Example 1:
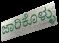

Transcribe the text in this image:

ಜಾರಿಕೊಳ್ಳು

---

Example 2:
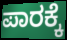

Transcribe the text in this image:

ಪಾರಕ್ಕೆ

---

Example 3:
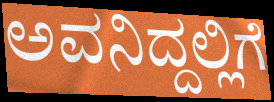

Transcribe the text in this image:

ಅವನಿದ್ದಲ್ಲಿಗೆ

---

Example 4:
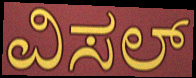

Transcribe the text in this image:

ವಿಸಲ್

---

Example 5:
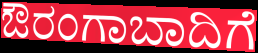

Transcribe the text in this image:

ಔರಂಗಾಬಾದಿಗೆ